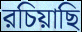
রচিয়াছি